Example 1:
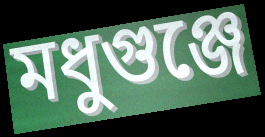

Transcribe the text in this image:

মধুগুঞ্জে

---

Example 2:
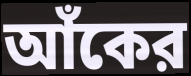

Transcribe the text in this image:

আঁকের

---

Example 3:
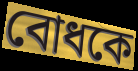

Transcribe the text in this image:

বোধকে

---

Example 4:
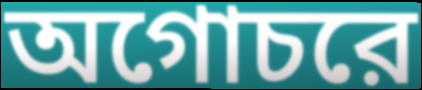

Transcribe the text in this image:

অগোচরে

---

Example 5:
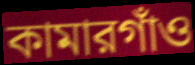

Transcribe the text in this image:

কামারগাঁও